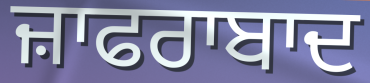
ਜ਼ਾਫਰਾਬਾਦ